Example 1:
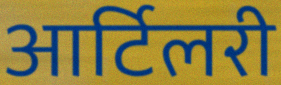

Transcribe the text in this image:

आर्टिलरी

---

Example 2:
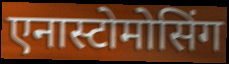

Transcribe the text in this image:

एनास्टोमोसिंग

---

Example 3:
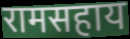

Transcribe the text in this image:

रामसहाय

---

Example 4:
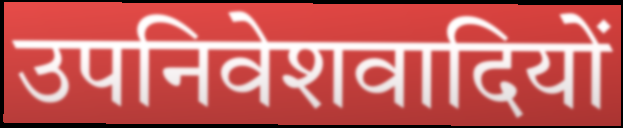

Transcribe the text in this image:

उपनिवेशवादियों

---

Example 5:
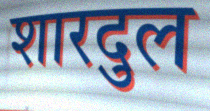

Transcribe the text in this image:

शारदुल